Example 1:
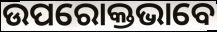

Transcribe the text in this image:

ଉପରୋକ୍ତଭାବେ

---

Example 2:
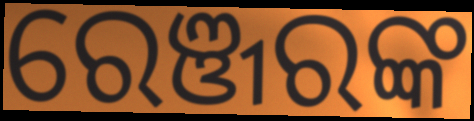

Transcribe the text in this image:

ରେଞ୍ଜରଙ୍କ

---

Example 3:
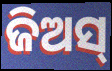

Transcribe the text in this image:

ଜିଅସ୍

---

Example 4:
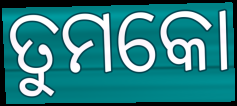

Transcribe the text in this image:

ତୁମକୋ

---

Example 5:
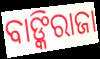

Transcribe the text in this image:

ବାଙ୍କିରାଜା